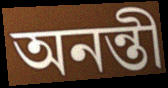
অনন্তী